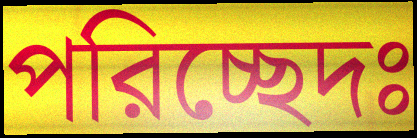
পরিচ্ছেদঃ